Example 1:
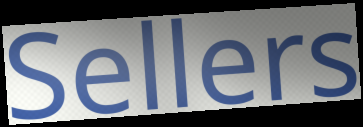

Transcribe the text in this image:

Sellers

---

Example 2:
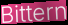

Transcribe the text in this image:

Bittern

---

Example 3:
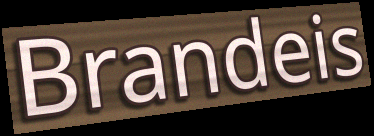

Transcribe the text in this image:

Brandeis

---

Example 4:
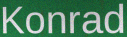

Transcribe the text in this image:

Konrad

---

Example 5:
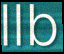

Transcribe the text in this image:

llb